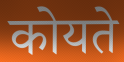
कोयते